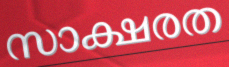
സാക്ഷരത